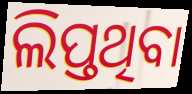
ଲିପ୍ତଥିବା